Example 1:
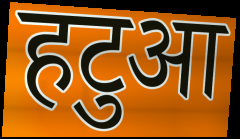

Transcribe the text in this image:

हटुआ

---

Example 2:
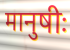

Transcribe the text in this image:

मानुषीः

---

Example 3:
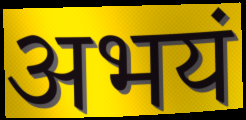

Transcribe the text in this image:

अभयं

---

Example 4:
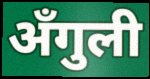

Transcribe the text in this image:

अँगुली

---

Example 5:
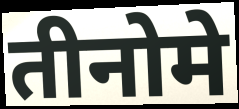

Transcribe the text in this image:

तीनोमे